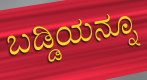
ಬಡ್ಡಿಯನ್ನೂ